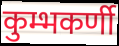
कुम्भकर्णी